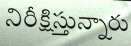
నిరీక్షిస్తున్నారు